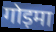
गोड़मा